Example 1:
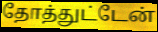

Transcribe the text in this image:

தோத்துட்டேன்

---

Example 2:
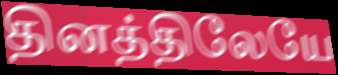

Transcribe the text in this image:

தினத்திலேயே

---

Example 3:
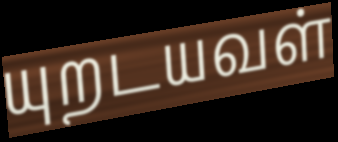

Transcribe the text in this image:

யுறடயவள்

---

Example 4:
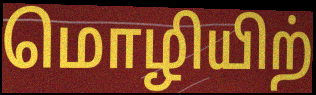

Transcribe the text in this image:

மொழியிற்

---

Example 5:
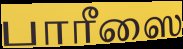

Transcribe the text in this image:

பாரீஸை